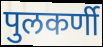
पुलकर्णी